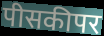
पीसकीपर